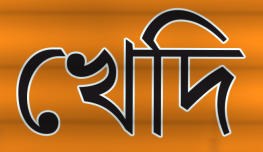
খেদি